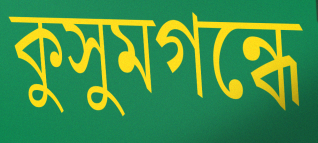
কুসুমগন্ধে